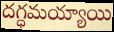
దగ్ధమయ్యాయి